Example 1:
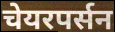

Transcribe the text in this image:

चेयरपर्सन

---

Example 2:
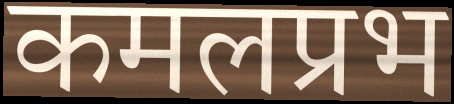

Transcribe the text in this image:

कमलप्रभ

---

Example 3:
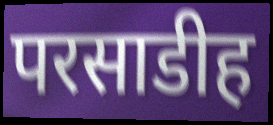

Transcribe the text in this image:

परसाडीह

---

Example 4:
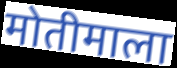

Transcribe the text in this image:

मोतीमाला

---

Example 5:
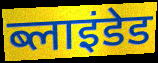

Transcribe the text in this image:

ब्लाइंडेड